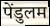
पेंडुलम